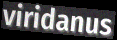
viridanus